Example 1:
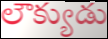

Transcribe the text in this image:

లౌక్యుడు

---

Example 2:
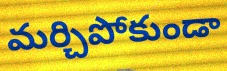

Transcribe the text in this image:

మర్చిపోకుండా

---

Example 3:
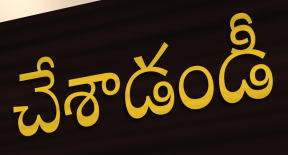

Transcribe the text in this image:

చేశాడండీ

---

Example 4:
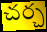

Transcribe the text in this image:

చర్చ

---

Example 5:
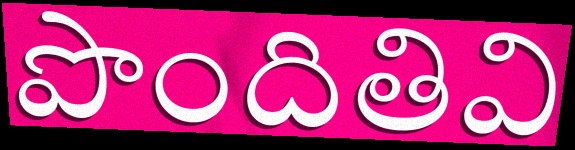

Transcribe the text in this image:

పొందితివి